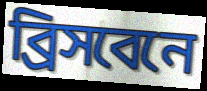
ব্রিসবেনে